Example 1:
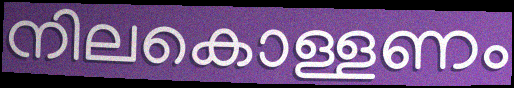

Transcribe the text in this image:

നിലകൊള്ളണം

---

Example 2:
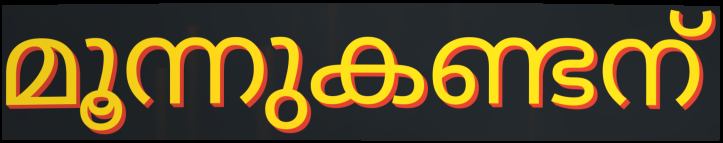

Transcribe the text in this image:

മൂന്നുകണ്ടന്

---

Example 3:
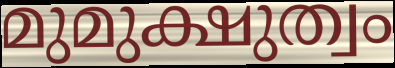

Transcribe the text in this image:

മുമുക്ഷുത്വം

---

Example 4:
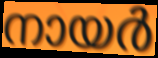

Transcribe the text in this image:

നായർ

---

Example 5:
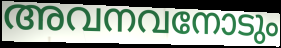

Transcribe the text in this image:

അവനവനോടും